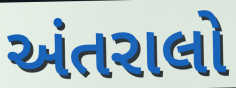
અંતરાલો